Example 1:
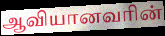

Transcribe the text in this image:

ஆவியானவரின்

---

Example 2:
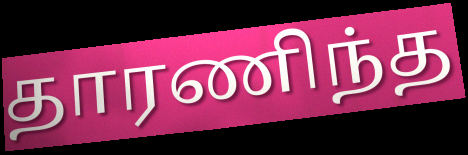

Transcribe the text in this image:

தாரணிந்த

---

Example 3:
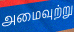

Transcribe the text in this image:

அமைவுற்று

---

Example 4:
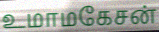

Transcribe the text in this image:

உமாமகேசன்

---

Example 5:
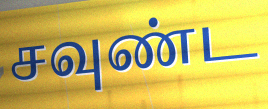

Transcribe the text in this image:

சவுண்ட